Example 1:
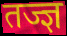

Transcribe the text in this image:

तज्‍ज्ञ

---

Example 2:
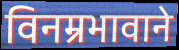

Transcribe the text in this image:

विनम्रभावाने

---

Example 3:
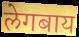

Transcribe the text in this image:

लेगबाय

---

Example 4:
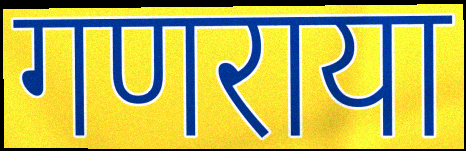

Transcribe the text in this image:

गणराया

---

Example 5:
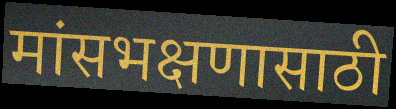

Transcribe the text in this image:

मांसभक्षणासाठी